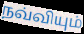
நவ்வியும்